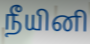
நீயினி